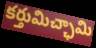
కర్తుమిచ్ఛామి